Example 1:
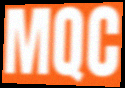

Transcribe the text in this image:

MQC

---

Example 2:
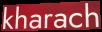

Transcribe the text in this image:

kharach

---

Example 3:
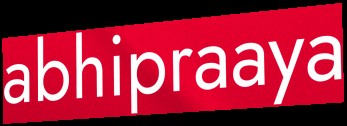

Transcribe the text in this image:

abhipraaya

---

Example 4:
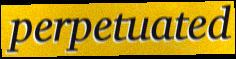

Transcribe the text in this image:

perpetuated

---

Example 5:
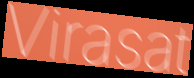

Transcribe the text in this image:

Virasat